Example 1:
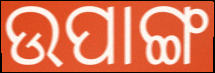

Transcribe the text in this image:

ଉପାଙ୍ଗ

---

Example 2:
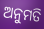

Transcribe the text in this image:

ଅନୁମତି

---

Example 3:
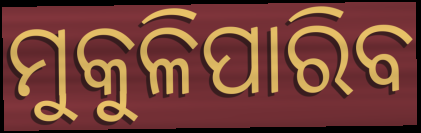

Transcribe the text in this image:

ମୁକୁଳିପାରିବ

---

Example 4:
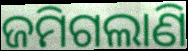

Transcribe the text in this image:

ଜମିଗଲାଣି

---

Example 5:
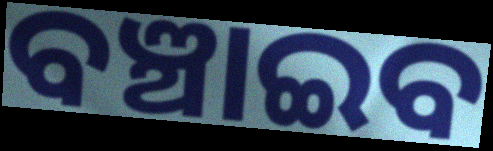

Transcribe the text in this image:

ବଞ୍ଚାଇବ